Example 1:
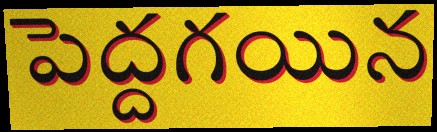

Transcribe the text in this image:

పెద్దగయిన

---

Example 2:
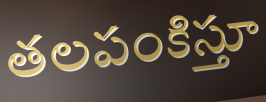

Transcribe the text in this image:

తలపంకిస్తూ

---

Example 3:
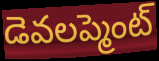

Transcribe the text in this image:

డెవలప్మెంట్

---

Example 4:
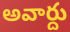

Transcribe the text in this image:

అవార్దు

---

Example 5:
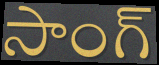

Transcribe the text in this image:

సాంగ్